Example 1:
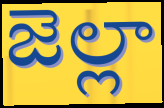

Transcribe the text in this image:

జెల్లా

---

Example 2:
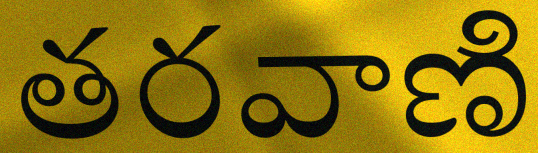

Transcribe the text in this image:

తరవాణి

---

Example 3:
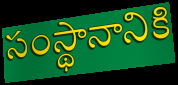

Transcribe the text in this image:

సంస్థానానికి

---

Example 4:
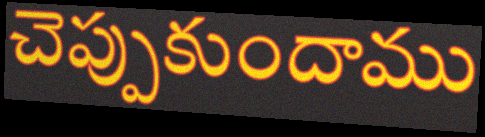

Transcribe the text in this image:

చెప్పుకుందాము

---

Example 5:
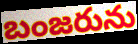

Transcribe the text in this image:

బంజరును